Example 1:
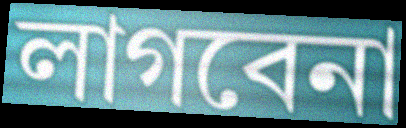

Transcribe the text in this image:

লাগবেনা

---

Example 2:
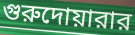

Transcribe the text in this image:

গুরুদোয়ারার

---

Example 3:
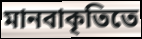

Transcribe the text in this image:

মানবাকৃতিতে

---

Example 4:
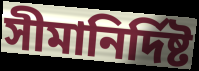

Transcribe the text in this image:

সীমানির্দিষ্ট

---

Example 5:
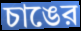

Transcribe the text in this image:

চাঙের